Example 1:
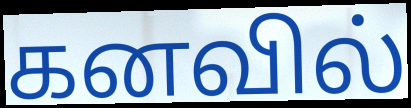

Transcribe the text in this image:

கனவில்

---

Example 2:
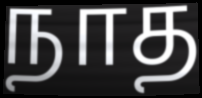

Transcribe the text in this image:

நாத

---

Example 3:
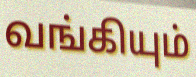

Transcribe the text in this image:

வங்கியும்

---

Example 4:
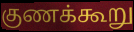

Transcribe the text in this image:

குணக்கூறு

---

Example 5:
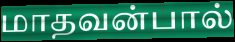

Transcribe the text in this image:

மாதவன்பால்